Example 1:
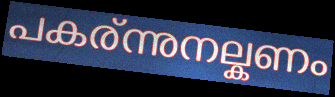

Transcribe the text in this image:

പകര്ന്നുനല്കണം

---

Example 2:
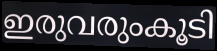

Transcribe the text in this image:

ഇരുവരുംകൂടി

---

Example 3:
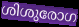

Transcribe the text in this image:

ശിശുരോഗ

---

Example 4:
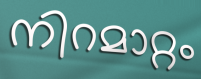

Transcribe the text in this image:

നിറമാറ്റം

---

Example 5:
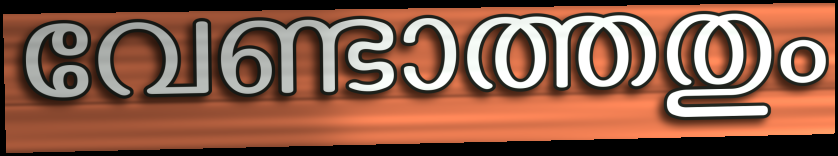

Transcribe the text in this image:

വേണ്ടാത്തതും